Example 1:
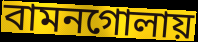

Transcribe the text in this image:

বামনগোলায়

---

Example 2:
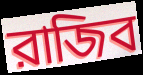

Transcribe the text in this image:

রাজিব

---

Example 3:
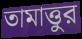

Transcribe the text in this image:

তামাত্তুর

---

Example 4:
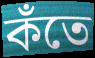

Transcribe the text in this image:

কঁতে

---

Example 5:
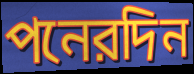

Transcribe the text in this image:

পনেরদিন